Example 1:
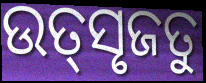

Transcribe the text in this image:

ଉତ୍‌ସୃଜତୁ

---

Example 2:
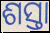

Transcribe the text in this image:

ଶସ୍ତା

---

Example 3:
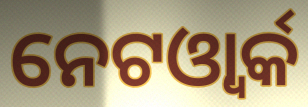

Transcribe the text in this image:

ନେଟଓ୍ବାର୍କ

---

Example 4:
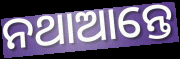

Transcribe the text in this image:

ନଥାଆନ୍ତେ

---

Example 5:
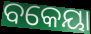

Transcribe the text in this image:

ବକେୟା